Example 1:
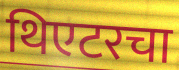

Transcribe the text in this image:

थिएटरचा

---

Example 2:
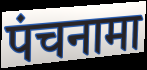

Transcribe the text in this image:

पंचनामा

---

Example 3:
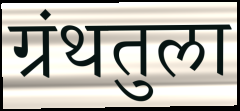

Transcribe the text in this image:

ग्रंथतुला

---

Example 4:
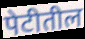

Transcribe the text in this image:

पेटीतील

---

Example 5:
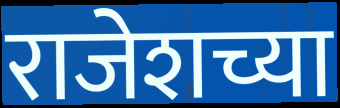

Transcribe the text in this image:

राजेशच्या